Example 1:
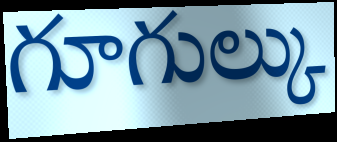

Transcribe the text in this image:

గూగుల్కు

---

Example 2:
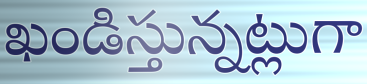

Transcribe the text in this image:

ఖండిస్తున్నట్లుగా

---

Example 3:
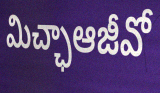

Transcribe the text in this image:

మిచ్ఛాఆజీవో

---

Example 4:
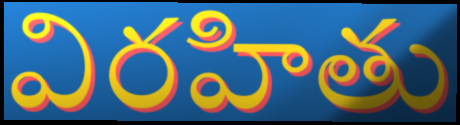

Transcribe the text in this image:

విరహితు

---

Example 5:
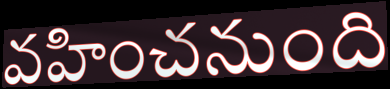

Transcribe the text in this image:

వహించనుంది